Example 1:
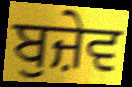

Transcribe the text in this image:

ਬੁਜ਼ੇਵ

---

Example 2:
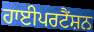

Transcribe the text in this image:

ਹਾਈਪਰਟੈਂਸ਼ਨ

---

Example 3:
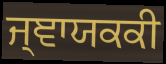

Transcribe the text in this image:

ਜ੍ਞਾਯਕਕੀ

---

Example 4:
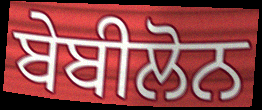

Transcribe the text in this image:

ਬੇਬੀਲੋਨ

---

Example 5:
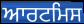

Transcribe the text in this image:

ਆਰਟਮਿਸ